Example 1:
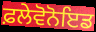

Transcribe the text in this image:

ਫ਼ਲੇਵੋਨੋਇਡ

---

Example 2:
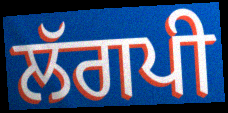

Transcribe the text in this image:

ਲੱਗਪੀ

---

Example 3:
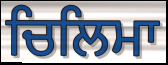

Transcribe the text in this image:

ਚਿਲਿਮਾ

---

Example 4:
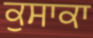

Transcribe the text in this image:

ਕੁਸਾਕਾ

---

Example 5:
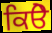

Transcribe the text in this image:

ਕਿੳੇ